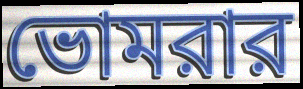
ভোমরার